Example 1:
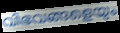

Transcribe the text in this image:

വിഭവങ്ങളെയും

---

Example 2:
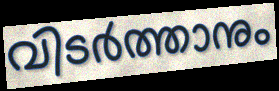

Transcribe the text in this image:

വിടർത്താനും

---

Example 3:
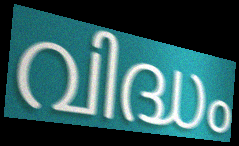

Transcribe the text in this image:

വിദ്ധം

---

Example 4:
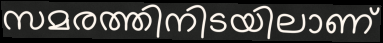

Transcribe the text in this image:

സമരത്തിനിടയിലാണ്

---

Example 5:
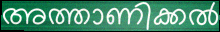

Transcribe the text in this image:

അത്താണിക്കൽ